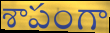
శాపంగా